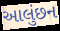
આલુંછન